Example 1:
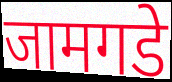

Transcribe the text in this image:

जामगडे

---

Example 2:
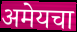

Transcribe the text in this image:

अमेयचा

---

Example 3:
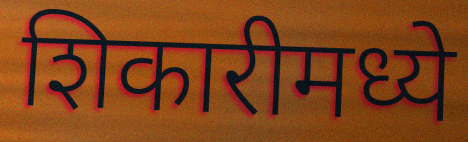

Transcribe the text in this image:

शिकारीमध्ये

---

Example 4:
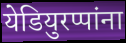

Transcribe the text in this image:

येडियुरप्पांना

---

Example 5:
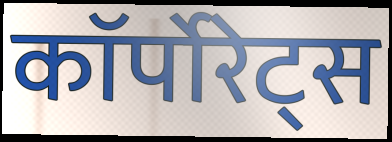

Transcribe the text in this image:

कॉर्पोरेट्स